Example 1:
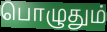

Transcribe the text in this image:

பொழுதும்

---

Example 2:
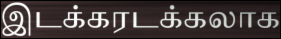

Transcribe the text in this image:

இடக்கரடக்கலாக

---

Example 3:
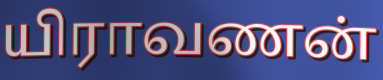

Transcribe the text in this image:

யிராவணன்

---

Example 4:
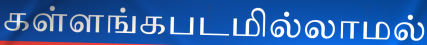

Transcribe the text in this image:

கள்ளங்கபடமில்லாமல்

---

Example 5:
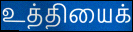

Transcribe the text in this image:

உத்தியைக்